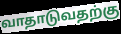
வாதாடுவதற்கு